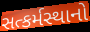
સત્કર્મસ્થાનો